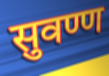
सुवण्ण